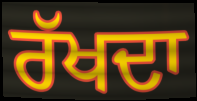
ਰੱਖਦਾ